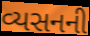
વ્યસનની